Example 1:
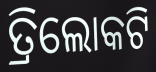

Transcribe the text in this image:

ତ୍ରିଲୋକଟି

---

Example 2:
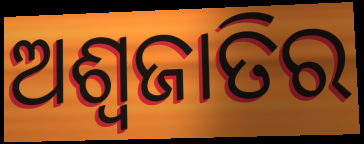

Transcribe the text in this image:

ଅଶ୍ୱଜାତିର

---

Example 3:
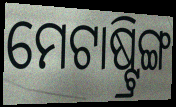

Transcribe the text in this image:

ମେଟାଷ୍ଟ୍ରିଙ୍ଗ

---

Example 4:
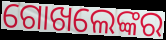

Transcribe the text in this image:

ଗୋଖଲେଙ୍କର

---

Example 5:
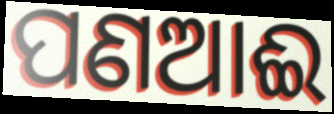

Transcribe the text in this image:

ପଣଆଈ